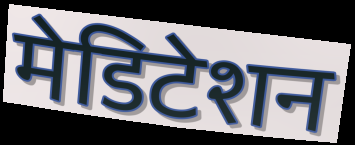
मेडिटेशन